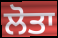
ਲੋਤਾ